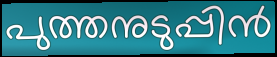
പുത്തനുടുപ്പിൻ